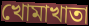
খোমাখাতা